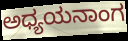
ಅಧ್ಯಯನಾಂಗ